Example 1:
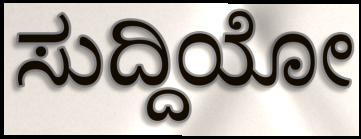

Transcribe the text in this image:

ಸುದ್ದಿಯೋ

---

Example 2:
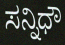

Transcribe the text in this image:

ಸನ್ನಿಧೌ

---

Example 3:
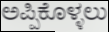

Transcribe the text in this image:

ಅಪ್ಪಿಕೊಳ್ಳಲು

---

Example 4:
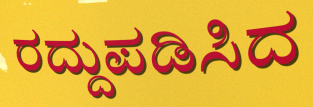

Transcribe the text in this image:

ರದ್ದುಪಡಿಸಿದ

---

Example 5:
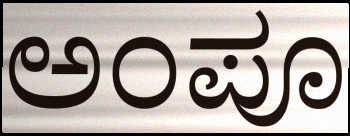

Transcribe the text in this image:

ಅಂಪೂ